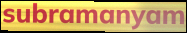
subramanyam